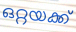
ഒറ്റയക്ക്